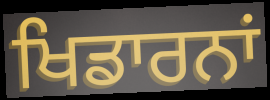
ਖਿਡਾਰਨਾਂ